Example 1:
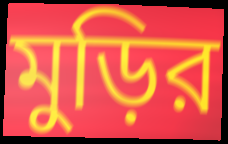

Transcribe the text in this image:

মুড়ির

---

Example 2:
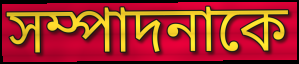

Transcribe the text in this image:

সম্পাদনাকে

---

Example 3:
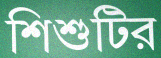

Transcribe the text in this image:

শিশুটির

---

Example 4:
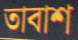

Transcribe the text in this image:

তাবাশ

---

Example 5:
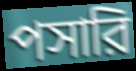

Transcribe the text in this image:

পসারি